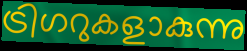
ട്രിഗറുകളാകുന്നു